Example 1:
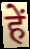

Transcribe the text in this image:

हें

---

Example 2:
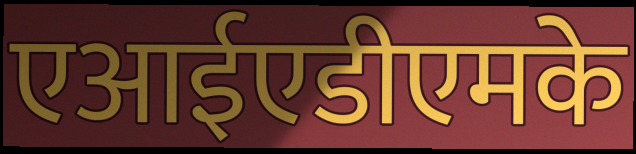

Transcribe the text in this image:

एआईएडीएमके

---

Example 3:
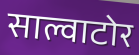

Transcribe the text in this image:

साल्वाटोर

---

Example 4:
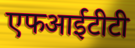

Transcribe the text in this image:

एफआईटीटी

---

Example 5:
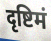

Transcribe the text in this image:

दृष्टिमं